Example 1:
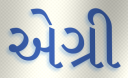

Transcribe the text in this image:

એગ્રી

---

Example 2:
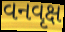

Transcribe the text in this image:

વનવૃક્ષ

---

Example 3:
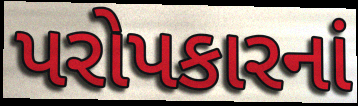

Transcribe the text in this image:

પરોપકારનાં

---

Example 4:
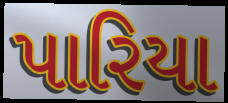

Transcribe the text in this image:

પારિયા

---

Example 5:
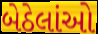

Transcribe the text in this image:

બેઠેલાંઓ